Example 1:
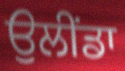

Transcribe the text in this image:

ਉਲੀਂਡਾ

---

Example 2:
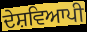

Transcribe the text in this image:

ਦੇਸ਼ਵਿਆਪੀ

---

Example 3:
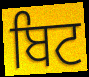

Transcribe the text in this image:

ਬਿਟ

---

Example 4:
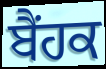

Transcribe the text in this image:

ਬੈਂਹਕ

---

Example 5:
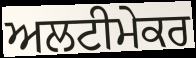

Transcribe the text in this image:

ਅਲਟੀਮੇਕਰ